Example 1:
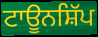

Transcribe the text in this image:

ਟਾਊਨਸ਼ਿੱਪ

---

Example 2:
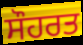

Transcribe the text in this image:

ਸੌਹਰਤ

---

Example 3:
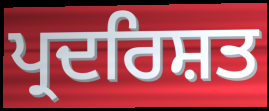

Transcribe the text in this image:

ਪ੍ਰਦਰਿਸ਼ਤ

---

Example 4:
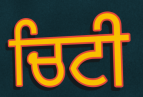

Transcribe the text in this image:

ਚਿਟੀ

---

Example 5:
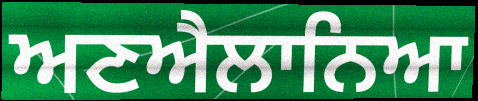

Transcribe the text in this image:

ਅਣਐਲਾਨਿਆ